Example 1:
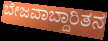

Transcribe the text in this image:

ಬೇಜವಾಬ್ದಾರಿತನ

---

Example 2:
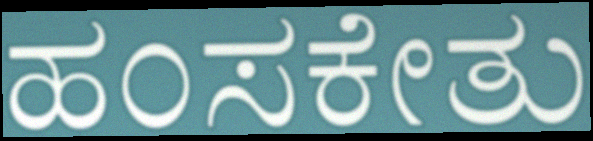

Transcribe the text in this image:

ಹಂಸಕೇತು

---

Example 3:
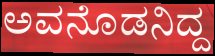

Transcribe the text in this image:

ಅವನೊಡನಿದ್ದ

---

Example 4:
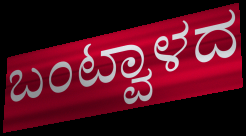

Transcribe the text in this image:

ಬಂಟ್ವಾಳದ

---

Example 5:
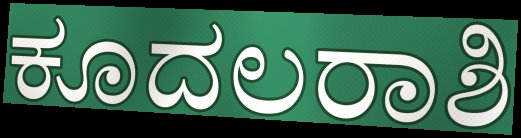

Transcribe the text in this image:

ಕೂದಲರಾಶಿ